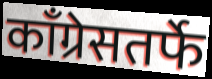
कॉँग्रेसतर्फे